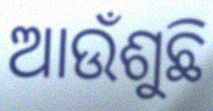
ଆଉଁଶୁଛି